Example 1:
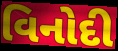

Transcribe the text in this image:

વિનોદી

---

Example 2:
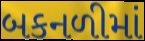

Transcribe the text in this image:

બકનળીમાં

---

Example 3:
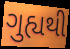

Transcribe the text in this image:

ગુહ્યથી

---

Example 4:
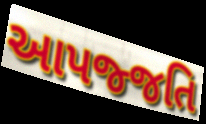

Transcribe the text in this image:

આપજ્જતિ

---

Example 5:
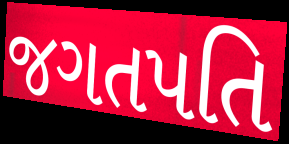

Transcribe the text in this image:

જગતપતિ